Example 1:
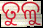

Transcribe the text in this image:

ତୁଳୁ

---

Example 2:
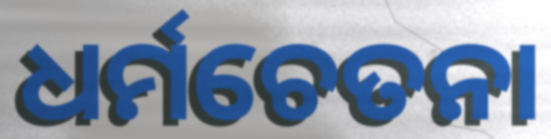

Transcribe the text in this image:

ଧର୍ମଚେତନା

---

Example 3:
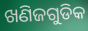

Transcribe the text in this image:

ଖଣିଜଗୁଡିକ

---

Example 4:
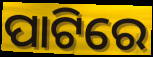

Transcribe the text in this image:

ପାଟିରେ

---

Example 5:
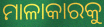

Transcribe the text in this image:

ମାଳାକାରକୁ